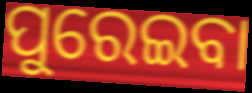
ପୁରେଇବା